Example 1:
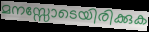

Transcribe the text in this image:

മനസ്സോടെയിരിക്കുക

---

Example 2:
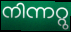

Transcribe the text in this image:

നിന്നറ്റു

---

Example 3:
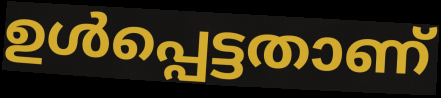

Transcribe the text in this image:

ഉൾപ്പെട്ടതാണ്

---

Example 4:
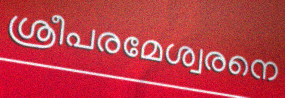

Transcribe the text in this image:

ശ്രീപരമേശ്വരനെ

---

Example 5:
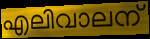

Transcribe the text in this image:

എലിവാലന്